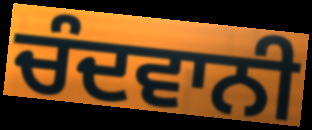
ਚੰਦਵਾਨੀ